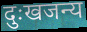
दुःखजन्य